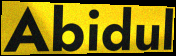
Abidul